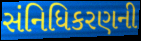
સંનિધિકરણની